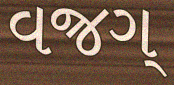
વજ્રગ્